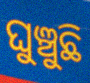
ଘୁଞ୍ଚୁଛି